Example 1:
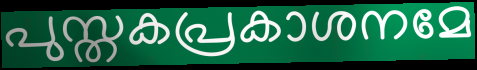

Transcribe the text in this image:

പുസ്തകപ്രകാശനമേ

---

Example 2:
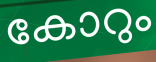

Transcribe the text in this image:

കോറും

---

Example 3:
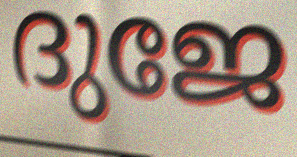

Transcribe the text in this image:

ദുജേ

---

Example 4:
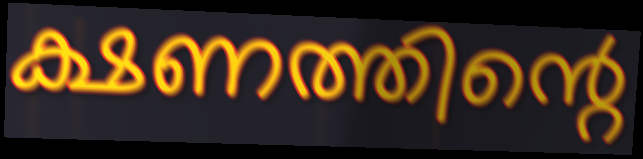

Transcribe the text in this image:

ക്ഷണത്തിന്റെ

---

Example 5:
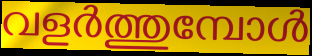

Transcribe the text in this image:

വളർത്തുമ്പോൾ